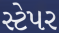
સ્ટેપર